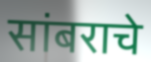
सांबराचे